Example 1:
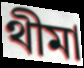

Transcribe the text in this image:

থীমা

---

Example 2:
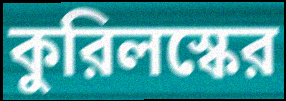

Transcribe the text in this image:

কুরিলস্কের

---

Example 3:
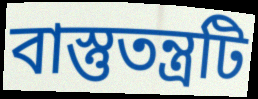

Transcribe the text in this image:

বাস্তুতন্ত্রটি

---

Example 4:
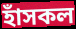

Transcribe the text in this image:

হাঁসকল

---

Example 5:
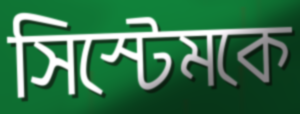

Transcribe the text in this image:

সিস্টেমকে